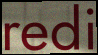
redi